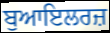
ਬੁਆਇਲਰਜ਼